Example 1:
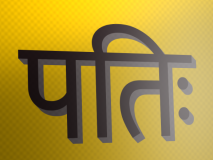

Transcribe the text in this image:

पतिः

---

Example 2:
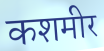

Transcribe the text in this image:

कशमीर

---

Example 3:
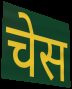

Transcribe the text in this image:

चेस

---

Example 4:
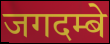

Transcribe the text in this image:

जगदम्बे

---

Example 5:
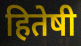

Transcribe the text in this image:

हितेषी